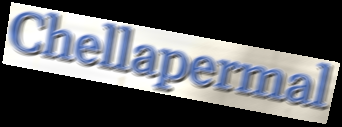
Chellapermal